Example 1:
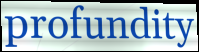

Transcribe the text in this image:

profundity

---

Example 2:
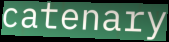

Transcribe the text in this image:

catenary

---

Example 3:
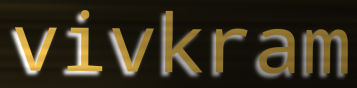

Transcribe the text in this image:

vivkram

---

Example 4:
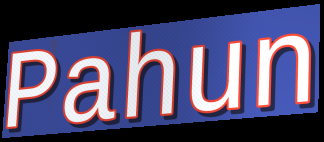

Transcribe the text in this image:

Pahun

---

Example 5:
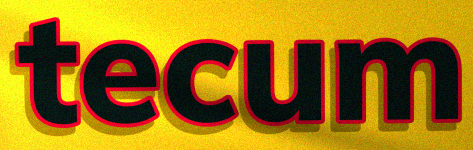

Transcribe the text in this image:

tecum